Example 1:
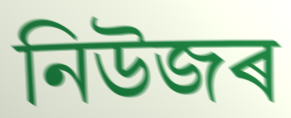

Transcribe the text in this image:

নিউজৰ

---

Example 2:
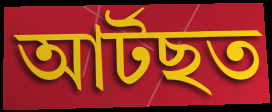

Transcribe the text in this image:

আৰ্টছত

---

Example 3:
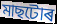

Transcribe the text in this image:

মাছটোৰ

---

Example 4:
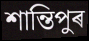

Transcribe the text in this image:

শান্তিপুৰ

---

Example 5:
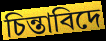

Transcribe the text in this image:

চিন্তাবিদে